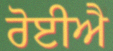
ਰੋਈਐ